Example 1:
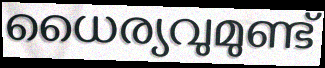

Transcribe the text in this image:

ധൈര്യവുമുണ്ട്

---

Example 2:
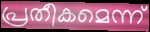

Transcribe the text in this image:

പ്രതീകമെന്ന്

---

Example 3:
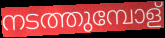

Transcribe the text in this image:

നടത്തുമ്പോള്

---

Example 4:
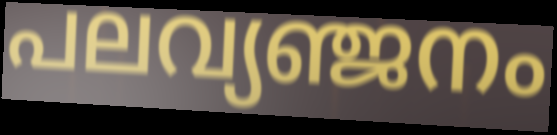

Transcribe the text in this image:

പലവ്യഞ്ജനം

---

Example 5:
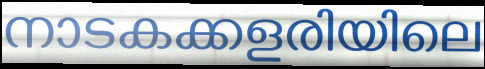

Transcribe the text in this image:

നാടകക്കളരിയിലെ